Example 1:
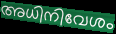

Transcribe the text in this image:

അധിനിവേശം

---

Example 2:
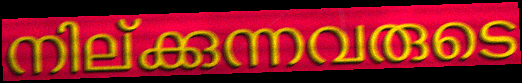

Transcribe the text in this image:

നില്ക്കുന്നവരുടെ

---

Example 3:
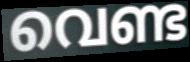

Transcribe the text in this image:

വെണ്ട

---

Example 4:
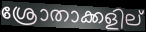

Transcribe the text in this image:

ശ്രോതാക്കളില്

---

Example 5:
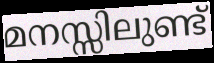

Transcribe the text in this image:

മനസ്സിലുണ്ട്